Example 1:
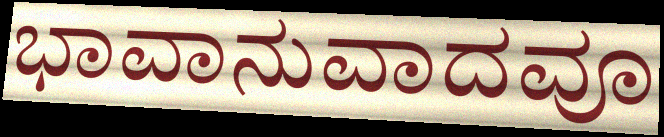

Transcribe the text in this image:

ಭಾವಾನುವಾದವೂ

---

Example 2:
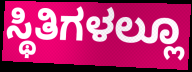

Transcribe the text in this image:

ಸ್ಥಿತಿಗಳಲ್ಲೂ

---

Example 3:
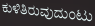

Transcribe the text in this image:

ಕುಳಿತಿರುವುದುಂಟು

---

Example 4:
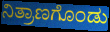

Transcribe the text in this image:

ನಿತ್ರಾಣಗೊಂಡು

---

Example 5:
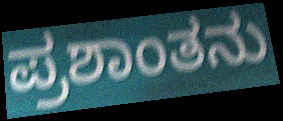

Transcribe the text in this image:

ಪ್ರಶಾಂತನು